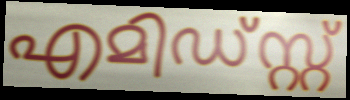
എമിഡ്സ്റ്റ്